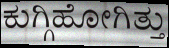
ಕುಗ್ಗಿಹೋಗಿತ್ತು